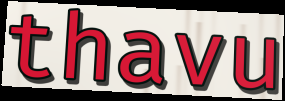
thavu